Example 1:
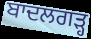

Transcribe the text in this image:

ਬਾਦਲਗੜ੍ਹ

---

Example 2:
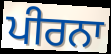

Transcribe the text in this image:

ਪੀਰਨਾ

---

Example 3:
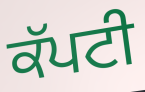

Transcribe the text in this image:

ਕੱਪਟੀ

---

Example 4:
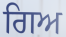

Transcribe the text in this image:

ਗਿਅ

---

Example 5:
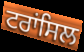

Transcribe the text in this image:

ਟਰਾਂਸਿਲ